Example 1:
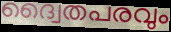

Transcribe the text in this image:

ദ്വൈതപരവും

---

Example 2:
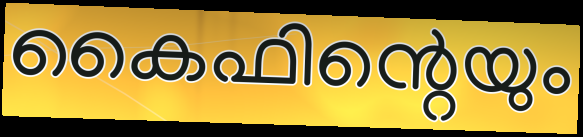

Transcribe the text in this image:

കൈഫിന്റെയും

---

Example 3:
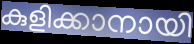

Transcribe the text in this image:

കുളിക്കാനായി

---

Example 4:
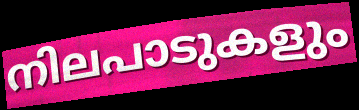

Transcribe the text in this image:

നിലപാടുകളും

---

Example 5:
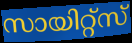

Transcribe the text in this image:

സായിറ്റ്സ്